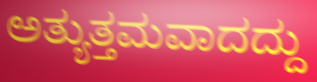
ಅತ್ಯುತ್ತಮವಾದದ್ದು